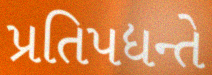
પ્રતિપદ્યન્તે